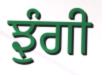
ਝੁੰਗੀ